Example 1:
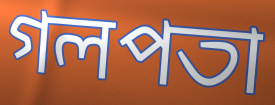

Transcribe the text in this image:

গলপতা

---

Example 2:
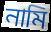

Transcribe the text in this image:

নামি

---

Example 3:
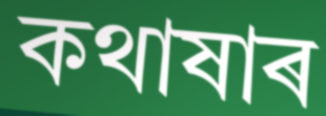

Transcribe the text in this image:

কথাষাৰ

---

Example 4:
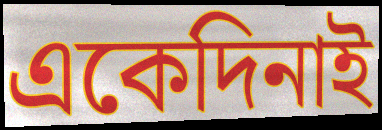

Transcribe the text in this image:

একেদিনাই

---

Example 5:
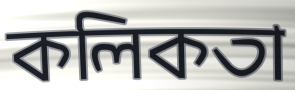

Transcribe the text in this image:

কলিকতা